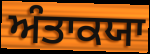
ਅੰਤਾਕਯਾ